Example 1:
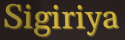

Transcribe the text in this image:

Sigiriya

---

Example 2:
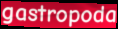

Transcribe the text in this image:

gastropoda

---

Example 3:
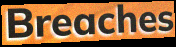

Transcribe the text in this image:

Breaches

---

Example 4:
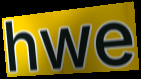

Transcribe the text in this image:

hwe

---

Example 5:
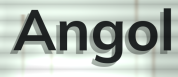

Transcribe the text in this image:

Angol